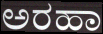
ಅರಹಾ